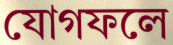
যোগফলে